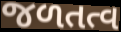
જળતત્વ